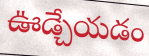
ఊడ్చేయడం